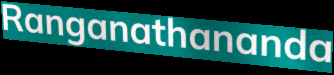
Ranganathananda